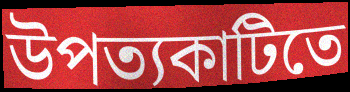
উপত্যকাটিতে